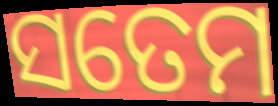
ସତେମ